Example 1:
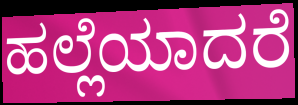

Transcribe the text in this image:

ಹಲ್ಲೆಯಾದರೆ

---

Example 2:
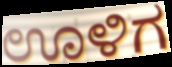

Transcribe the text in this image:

ಊಳಿಗ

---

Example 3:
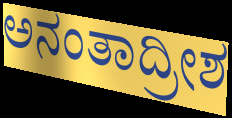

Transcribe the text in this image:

ಅನಂತಾದ್ರೀಶ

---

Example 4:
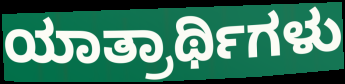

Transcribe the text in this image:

ಯಾತ್ರಾರ್ಥಿಗಳು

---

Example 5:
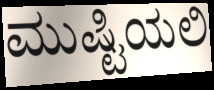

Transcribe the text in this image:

ಮುಷ್ಟಿಯಲಿ